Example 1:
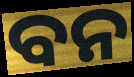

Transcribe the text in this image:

ବନ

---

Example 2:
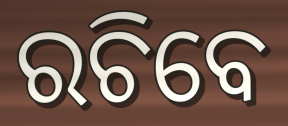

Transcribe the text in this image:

ରଚିବେ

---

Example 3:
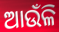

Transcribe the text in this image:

ଆଉଁଳି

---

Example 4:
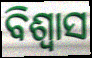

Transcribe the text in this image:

ବିଶ୍ଵାସ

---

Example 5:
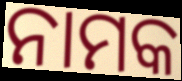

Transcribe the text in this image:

ନାମକ